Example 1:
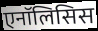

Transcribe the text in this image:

एनॉलिसिस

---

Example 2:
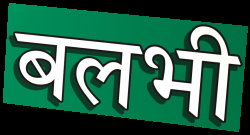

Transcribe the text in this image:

बलभी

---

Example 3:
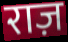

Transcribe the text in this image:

राज़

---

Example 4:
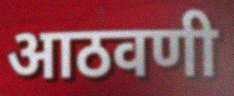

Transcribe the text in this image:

आठवणी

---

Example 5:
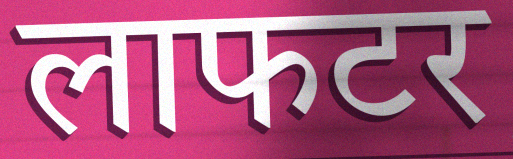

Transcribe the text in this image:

लाफटर